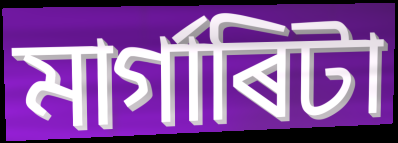
মাৰ্গাৰিটা